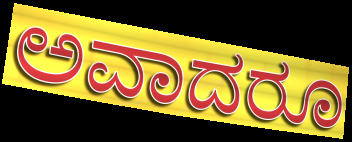
ಅವಾದರೂ